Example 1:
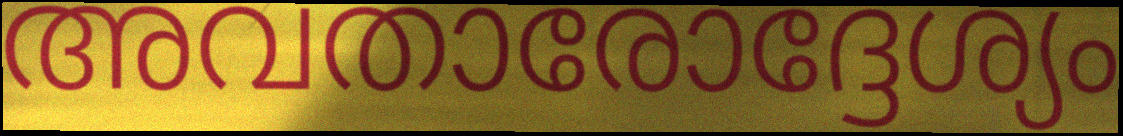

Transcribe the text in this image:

അവതാരോദ്ദേശ്യം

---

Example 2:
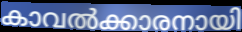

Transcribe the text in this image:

കാവൽക്കാരനായി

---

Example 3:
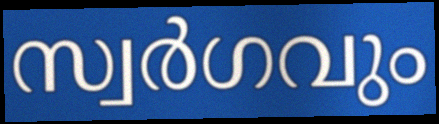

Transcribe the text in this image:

സ്വർഗവും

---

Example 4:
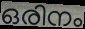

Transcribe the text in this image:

ഒരിനം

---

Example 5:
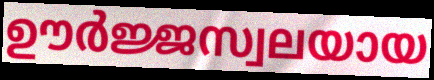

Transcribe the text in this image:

ഊർജ്ജസ്വലയായ